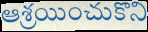
ఆశ్రయించుకొని